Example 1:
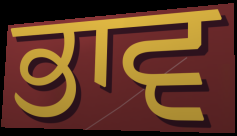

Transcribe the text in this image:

ਭਾਵ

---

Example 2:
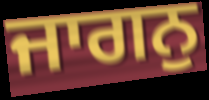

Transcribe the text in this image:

ਜਾਗਨੁ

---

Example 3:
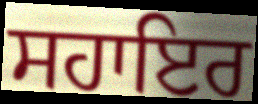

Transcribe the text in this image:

ਸਹਾਇਰ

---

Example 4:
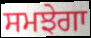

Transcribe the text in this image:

ਸਮਝੇਗਾ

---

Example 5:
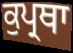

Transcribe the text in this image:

ਕੁਪ੍ਰਥਾ